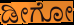
ಡೀಗೋ